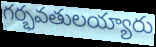
గర్భవతులయ్యారు